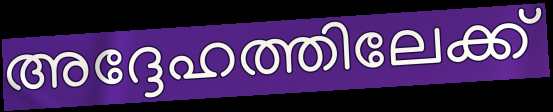
അദ്ദേഹത്തിലേക്ക്